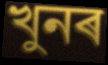
খুনৰ